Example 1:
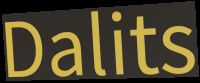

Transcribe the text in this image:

Dalits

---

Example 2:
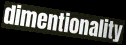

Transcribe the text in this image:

dimentionality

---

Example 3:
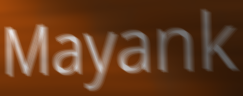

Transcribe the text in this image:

Mayank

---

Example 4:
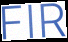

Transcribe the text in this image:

FIR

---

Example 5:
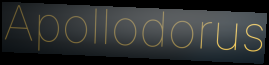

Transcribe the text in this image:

Apollodorus